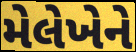
મેલેખેને